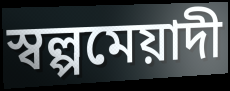
স্বল্পমেয়াদী